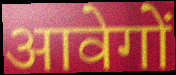
आवेगों